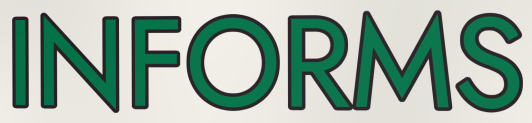
INFORMS